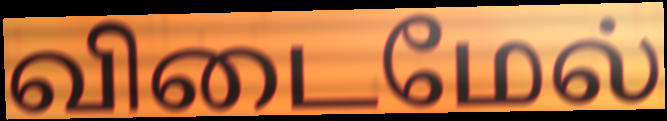
விடைமேல்